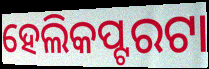
ହେଲିକପ୍ଟରଟା